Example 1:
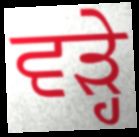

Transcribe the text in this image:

ਵੜ੍ਹੇ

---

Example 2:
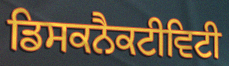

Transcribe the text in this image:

ਡਿਸਕਨੈਕਟੀਵਿਟੀ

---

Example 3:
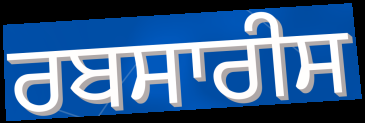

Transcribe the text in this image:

ਰਬਸਾਰੀਸ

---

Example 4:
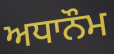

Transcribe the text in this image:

ਅਧਾਨੌਮ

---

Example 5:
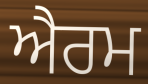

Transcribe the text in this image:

ਐਰਮ